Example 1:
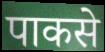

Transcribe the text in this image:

पाकसे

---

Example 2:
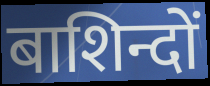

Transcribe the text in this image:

बाशिन्दों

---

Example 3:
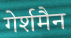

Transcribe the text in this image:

गेर्शमैन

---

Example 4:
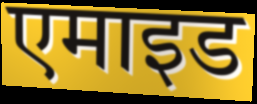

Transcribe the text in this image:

एमाइड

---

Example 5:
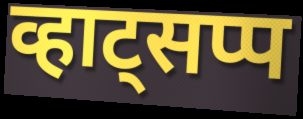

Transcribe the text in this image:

व्हाट्सप्प